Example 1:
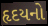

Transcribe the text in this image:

હૃદયનો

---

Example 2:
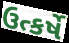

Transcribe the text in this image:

ઉત્કર્ષે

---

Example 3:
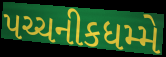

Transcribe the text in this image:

પચ્ચનીકધમ્મે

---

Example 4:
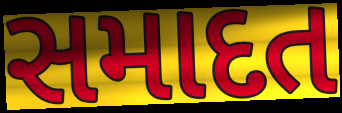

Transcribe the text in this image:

સમાદત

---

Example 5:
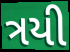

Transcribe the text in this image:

ત્રયી